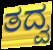
ತದ್ವ